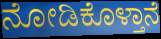
ನೋಡಿಕೊಳ್ತಾನೆ